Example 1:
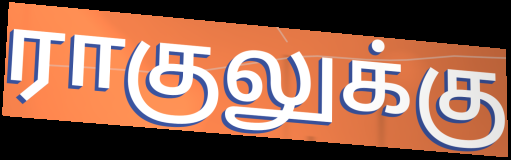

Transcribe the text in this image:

ராகுலுக்கு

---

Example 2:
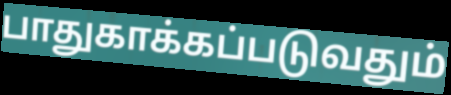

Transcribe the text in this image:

பாதுகாக்கப்படுவதும்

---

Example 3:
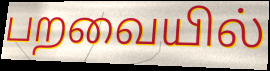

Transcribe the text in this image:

பறவையில்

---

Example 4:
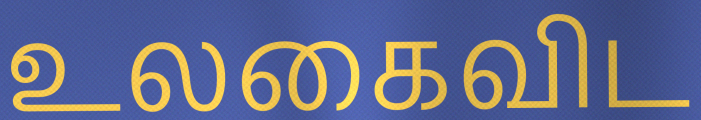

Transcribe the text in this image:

உலகைவிட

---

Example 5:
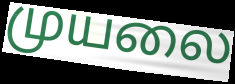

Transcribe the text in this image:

முயலை